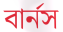
বার্নস